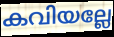
കവിയല്ലേ